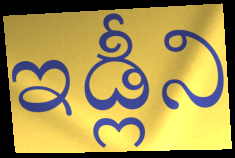
ఇడ్లీని